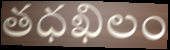
తధఖిలం